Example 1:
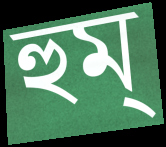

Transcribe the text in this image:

হুম্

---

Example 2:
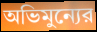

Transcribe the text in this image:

অভিমুন্যের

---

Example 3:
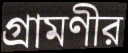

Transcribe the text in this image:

গ্রামণীর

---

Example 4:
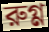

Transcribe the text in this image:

রুগ্ণ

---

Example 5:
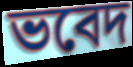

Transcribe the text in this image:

ভবেদ